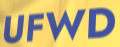
UFWD